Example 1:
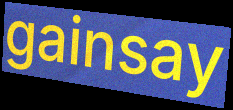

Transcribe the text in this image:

gainsay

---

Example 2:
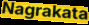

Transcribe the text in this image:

Nagrakata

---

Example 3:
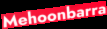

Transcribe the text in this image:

Mehoonbarra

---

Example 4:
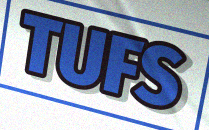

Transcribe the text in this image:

TUFS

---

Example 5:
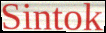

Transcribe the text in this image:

Sintok